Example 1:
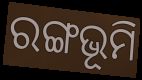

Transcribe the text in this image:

ରଙ୍ଗଭୂମି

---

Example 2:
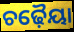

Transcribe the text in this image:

ଚଢ଼ୈୟା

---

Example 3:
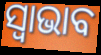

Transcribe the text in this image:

ସ୍ୱାଭାବ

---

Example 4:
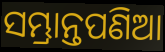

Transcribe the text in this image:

ସମ୍ଭ୍ରାନ୍ତପଣିଆ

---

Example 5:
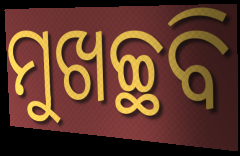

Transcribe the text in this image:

ମୁଖଚ୍ଛବି